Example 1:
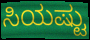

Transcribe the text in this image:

ಸಿಯಷ್ಟು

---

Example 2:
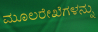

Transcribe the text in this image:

ಮೂಲರೇಖೆಗಳನ್ನು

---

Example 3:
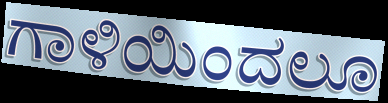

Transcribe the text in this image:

ಗಾಳಿಯಿಂದಲೂ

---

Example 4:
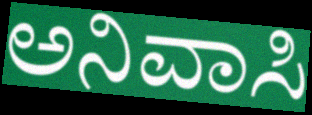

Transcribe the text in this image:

ಅನಿವಾಸಿ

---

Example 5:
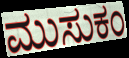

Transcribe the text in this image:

ಮುಸುಕಂ